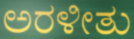
ಅರಳೀತು